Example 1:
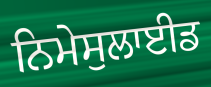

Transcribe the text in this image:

ਨਿਮੇਸੁਲਾਈਡ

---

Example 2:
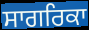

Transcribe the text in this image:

ਸਾਗਰਿਕਾ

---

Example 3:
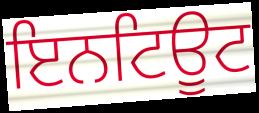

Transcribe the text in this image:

ਇਨਟਿਊਟ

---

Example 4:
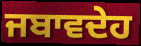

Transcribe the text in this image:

ਜਬਾਵਦੇਹ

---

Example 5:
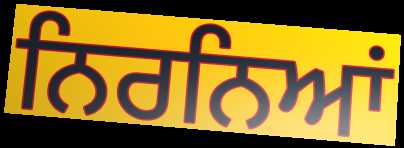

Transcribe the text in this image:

ਨਿਰਨਿਆਂ